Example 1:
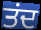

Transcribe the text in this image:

ਤਂਦ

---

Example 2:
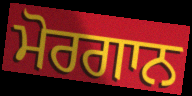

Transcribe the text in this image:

ਮੋਰਗਾਨ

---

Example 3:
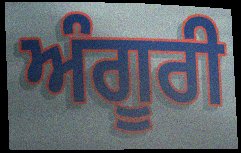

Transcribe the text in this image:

ਅੰਗੂਰੀ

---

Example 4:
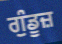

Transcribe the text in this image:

ਗੁੰਡੂਜ਼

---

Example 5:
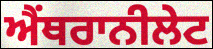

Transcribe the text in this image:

ਐਂਥਰਾਨੀਲੇਟ